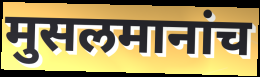
मुसलमानांच